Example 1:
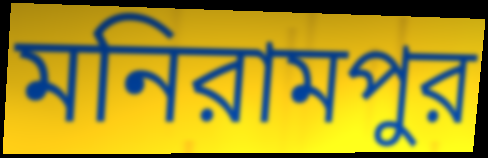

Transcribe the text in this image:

মনিরামপুর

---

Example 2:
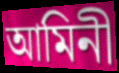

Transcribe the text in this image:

আমিনী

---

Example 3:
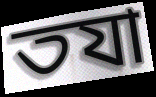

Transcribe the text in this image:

তযা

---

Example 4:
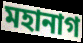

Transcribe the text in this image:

মহানাগ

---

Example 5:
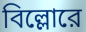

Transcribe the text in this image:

বিল্লোরে